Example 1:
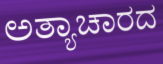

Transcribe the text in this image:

ಅತ್ಯಾಚಾರದ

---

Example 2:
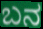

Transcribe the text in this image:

ಬನ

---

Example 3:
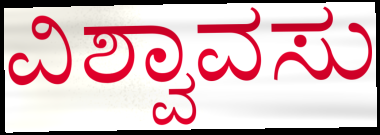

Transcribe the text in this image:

ವಿಶ್ವಾವಸು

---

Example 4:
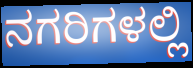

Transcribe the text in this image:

ನಗರಿಗಳಲ್ಲಿ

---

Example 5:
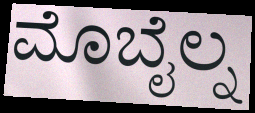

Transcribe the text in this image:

ಮೊಬೈಲ್ನ